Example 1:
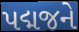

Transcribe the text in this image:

પદ્મજને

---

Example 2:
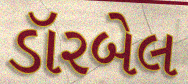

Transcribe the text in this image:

ડૉરબેલ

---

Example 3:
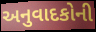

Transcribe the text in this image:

અનુવાદકોની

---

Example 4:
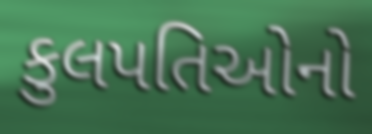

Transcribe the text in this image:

કુલપતિઓનો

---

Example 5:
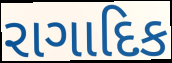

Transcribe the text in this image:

રાગાદિક